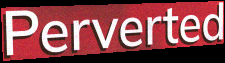
Perverted